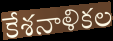
కేశనాళికల